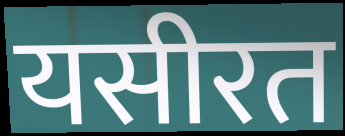
यसीरत